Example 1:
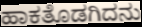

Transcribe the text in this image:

ಹಾಕತೊಡಗಿದನು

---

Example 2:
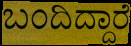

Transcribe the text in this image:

ಬಂದಿದ್ದಾರೆ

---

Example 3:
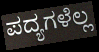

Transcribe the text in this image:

ಪದ್ಯಗಳೆಲ್ಲ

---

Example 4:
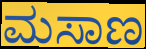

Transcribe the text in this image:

ಮಸಾಣ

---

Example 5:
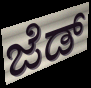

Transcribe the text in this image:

ಜೆಡ್